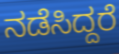
ನಡೆಸಿದ್ದರೆ